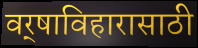
वर्षाविहारासाठी